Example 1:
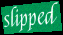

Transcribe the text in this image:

slipped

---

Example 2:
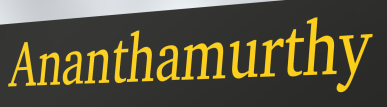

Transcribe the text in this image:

Ananthamurthy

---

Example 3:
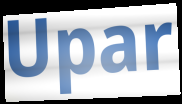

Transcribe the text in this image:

Upar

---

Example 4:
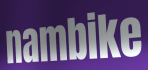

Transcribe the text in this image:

nambike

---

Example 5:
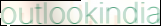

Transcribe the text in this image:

outlookindia